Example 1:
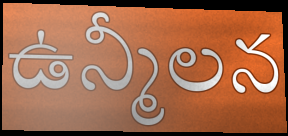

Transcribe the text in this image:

ఉన్మీలన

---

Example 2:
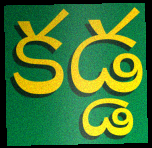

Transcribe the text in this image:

కడ్డ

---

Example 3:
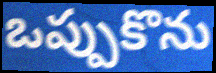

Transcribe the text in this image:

ఒప్పుకొను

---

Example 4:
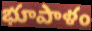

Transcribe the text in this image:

భూపాళం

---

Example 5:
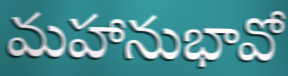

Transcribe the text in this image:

మహానుభావో